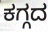
ಕಗ್ಗದ